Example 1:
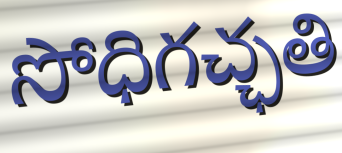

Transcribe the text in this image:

సోధిగచ్ఛతి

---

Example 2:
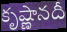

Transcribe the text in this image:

కృష్ణానదీ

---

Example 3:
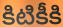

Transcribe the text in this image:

కిటికీకి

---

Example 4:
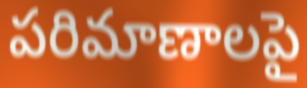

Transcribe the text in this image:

పరిమాణాలపై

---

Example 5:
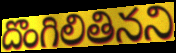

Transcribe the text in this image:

దొంగిలితినని